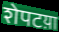
शेपटय़ा